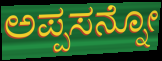
ಅಪ್ಪಸನ್ನೋ